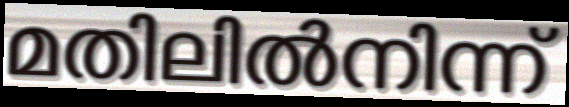
മതിലിൽനിന്ന്